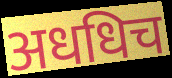
अधधिच